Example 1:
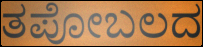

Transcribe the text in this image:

ತಪೋಬಲದ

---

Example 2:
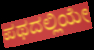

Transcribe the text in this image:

ಪಥದಲ್ಲಿಯೇ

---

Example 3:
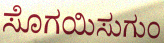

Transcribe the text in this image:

ಸೊಗಯಿಸುಗುಂ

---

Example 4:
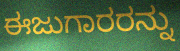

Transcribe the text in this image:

ಈಜುಗಾರರನ್ನು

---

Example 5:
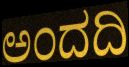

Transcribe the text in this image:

ಅಂದದಿ